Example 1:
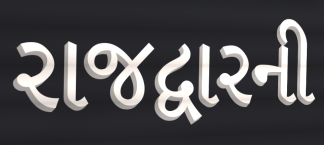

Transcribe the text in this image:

રાજદ્વારની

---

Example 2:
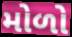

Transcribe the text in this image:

મોળો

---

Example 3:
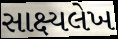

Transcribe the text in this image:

સાક્ષ્યલેખ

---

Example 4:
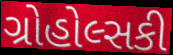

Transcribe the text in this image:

ગ્રોહોલ્સકી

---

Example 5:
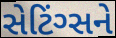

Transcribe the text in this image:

સેટિંગ્સને